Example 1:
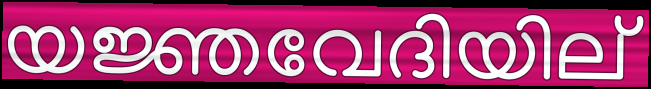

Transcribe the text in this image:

യജ്ഞവേദിയില്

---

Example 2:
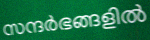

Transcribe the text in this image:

സന്ദർഭങ്ങളിൽ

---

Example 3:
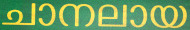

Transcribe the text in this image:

ചാനലായ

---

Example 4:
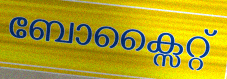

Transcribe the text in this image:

ബോക്സൈറ്റ്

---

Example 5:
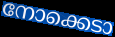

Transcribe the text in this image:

നോക്കെടാ